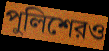
পুলিশেরও